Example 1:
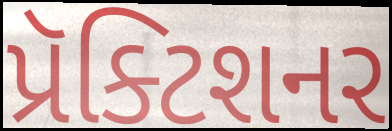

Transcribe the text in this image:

પ્રૅક્ટિશનર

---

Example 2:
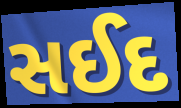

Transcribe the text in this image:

સઈદ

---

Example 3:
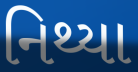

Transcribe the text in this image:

નિથ્યા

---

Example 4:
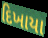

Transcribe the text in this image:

દિખાયા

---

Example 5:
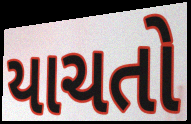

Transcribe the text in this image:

યાચતો